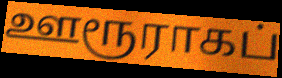
ஊரூராகப்